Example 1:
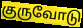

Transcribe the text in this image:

குருவோடு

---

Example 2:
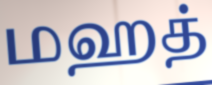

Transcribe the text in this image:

மஹத்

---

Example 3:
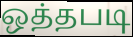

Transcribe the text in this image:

ஒத்தபடி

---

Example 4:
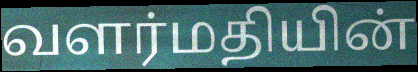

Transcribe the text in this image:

வளர்மதியின்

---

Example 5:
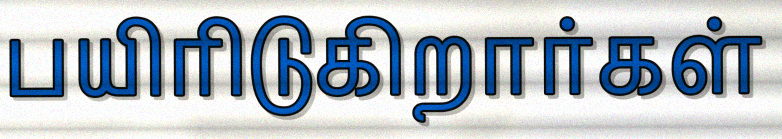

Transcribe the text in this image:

பயிரிடுகிறார்கள்